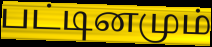
பட்டினமும்